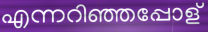
എന്നറിഞ്ഞപ്പോള്